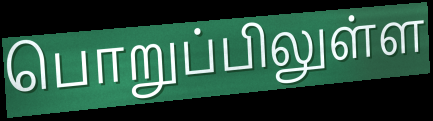
பொறுப்பிலுள்ள